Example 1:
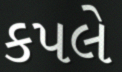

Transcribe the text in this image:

કપલે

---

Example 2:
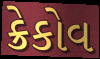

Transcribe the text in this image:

ક્રેકોવ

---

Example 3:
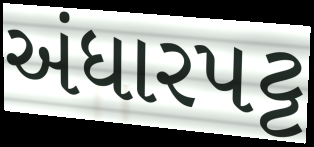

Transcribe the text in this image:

અંધારપટ્ટ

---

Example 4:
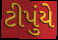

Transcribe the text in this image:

ટીપુંયે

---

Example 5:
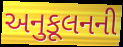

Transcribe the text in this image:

અનુકૂલનની